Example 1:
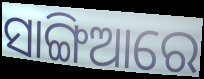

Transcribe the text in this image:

ସାଙ୍ଗିଆରେ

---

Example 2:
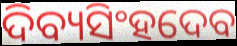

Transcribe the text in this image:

ଦିବ୍ୟସିଂହଦେବ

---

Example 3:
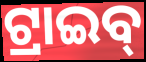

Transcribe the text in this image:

ଟ୍ରାଇବ୍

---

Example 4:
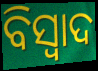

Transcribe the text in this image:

ବିସ୍ୱାଦ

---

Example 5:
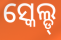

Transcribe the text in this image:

ସ୍କେଲ୍ଡ୍